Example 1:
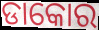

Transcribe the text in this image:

ଡାକୋର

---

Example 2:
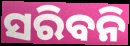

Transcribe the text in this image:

ସରିବନି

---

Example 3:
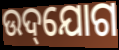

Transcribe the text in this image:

ଉଦ୍‌ଯୋଗ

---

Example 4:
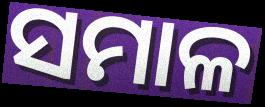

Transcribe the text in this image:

ସମାଳ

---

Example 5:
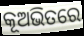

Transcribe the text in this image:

କୂଅଭିତରେ